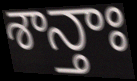
శాన్తాః